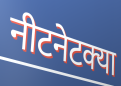
नीटनेटक्‍या